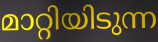
മാറ്റിയിടുന്ന